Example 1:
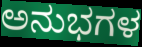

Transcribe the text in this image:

ಅನುಭಗಳ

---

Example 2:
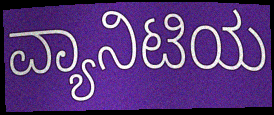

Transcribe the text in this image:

ವ್ಯಾನಿಟಿಯ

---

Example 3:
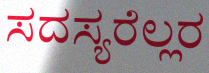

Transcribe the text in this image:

ಸದಸ್ಯರೆಲ್ಲರ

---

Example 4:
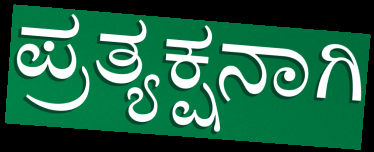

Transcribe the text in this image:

ಪ್ರತ್ಯಕ್ಷನಾಗಿ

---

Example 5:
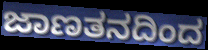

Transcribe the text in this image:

ಜಾಣತನದಿಂದ